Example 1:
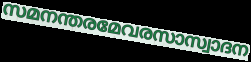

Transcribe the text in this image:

സമനന്തരമേവരസാസ്വാദന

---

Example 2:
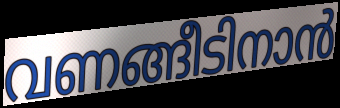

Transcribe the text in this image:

വണങ്ങീടിനാൻ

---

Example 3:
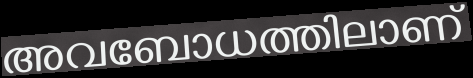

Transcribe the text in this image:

അവബോധത്തിലാണ്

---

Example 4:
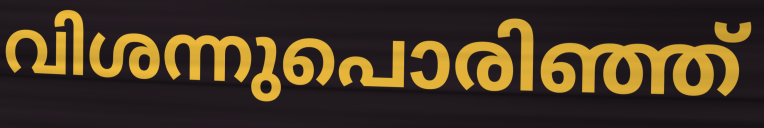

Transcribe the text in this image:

വിശന്നുപൊരിഞ്ഞ്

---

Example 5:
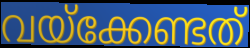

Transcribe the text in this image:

വയ്ക്കേണ്ടത്